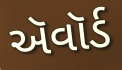
ઍવૉર્ડ